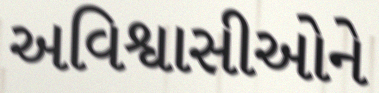
અવિશ્વાસીઓને